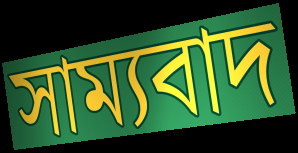
সাম্যবাদ